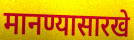
मानण्यासारखे